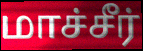
மாச்சீர்